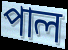
পাল